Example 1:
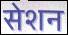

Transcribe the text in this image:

सेशन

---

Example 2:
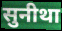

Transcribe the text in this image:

सुनीथा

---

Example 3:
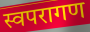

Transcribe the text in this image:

स्वपरागण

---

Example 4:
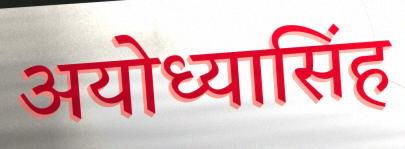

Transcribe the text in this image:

अयोध्यासिंह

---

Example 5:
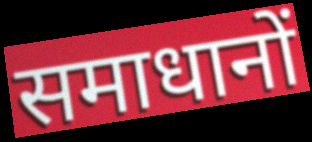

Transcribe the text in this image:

समाधानों